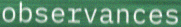
observances